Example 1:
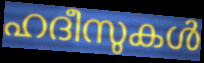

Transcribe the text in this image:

ഹദീസുകൾ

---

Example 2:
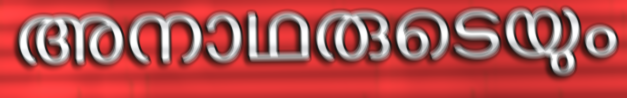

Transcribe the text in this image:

അനാഥരുടെയും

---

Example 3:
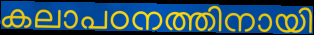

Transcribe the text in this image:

കലാപഠനത്തിനായി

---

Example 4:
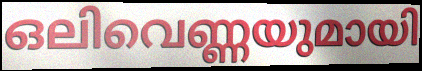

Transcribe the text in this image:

ഒലിവെണ്ണയുമായി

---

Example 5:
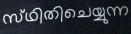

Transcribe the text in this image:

സ്‌ഥിതിചെയ്യുന്ന